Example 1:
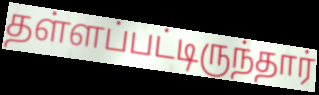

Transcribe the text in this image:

தள்ளப்பட்டிருந்தார்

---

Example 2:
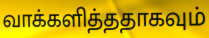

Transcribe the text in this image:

வாக்களித்ததாகவும்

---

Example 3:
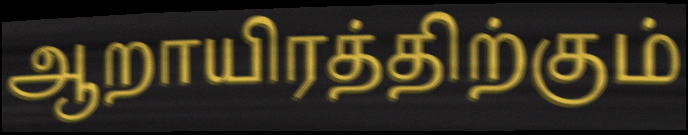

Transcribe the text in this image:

ஆறாயிரத்திற்கும்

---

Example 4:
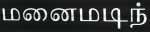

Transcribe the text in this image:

மனைமடிந்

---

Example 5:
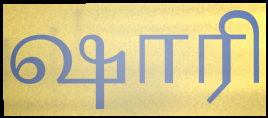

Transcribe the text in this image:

ஷாரி